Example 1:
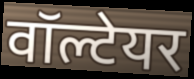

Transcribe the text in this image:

वॉल्टेयर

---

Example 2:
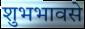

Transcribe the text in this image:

शुभभावसे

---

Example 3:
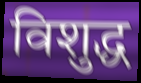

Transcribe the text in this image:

विशुद्ध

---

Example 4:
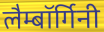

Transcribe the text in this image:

लैम्बॉर्गिनी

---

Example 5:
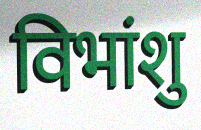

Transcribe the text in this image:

विभांशु